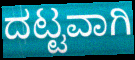
ದಟ್ಟವಾಗಿ